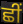
ਛੀਂ